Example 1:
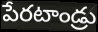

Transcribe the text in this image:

పేరటాండ్రు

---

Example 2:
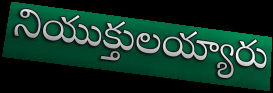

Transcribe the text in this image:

నియుక్తులయ్యారు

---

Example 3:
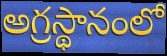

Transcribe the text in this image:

అగ్రస్థానంలో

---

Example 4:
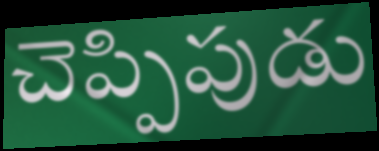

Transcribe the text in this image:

చెప్పిపుడు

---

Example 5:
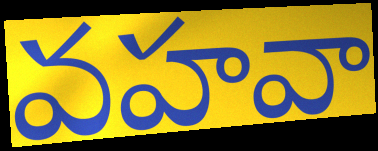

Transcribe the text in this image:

వహవా